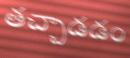
తచ్చాడడం